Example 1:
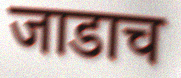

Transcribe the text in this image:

जाडाच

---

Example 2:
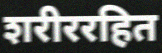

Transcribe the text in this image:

शरीररहित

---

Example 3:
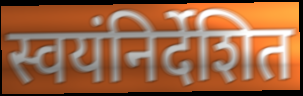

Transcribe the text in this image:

स्वयंनिर्देशित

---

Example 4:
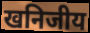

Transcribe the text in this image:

खनिजीय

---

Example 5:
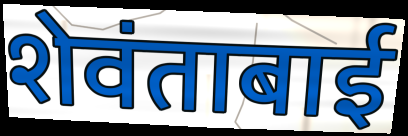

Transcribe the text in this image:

शेवंताबाई